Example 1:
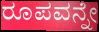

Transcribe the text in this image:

ರೂಪವನ್ನೇ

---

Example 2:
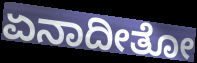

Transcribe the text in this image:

ಏನಾದೀತೋ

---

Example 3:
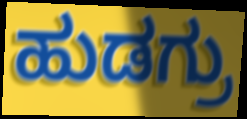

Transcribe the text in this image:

ಹುಡಗ್ರು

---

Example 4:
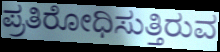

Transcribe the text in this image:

ಪ್ರತಿರೋಧಿಸುತ್ತಿರುವ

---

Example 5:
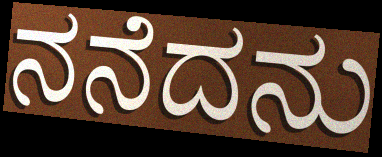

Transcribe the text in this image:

ನನೆದನು